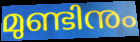
മുണ്ടിനും